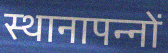
स्थानापन्नों